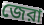
জেরা